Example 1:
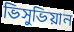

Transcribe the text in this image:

ভিসুভিয়ান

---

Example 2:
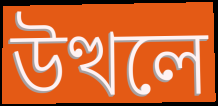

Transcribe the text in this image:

উত্থলে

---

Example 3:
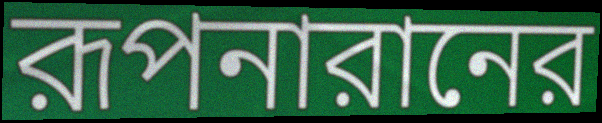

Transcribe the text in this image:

রূপনারানের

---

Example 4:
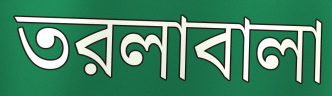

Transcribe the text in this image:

তরলাবালা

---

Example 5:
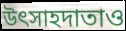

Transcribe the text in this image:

উৎসাহদাতাও